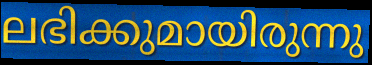
ലഭിക്കുമായിരുന്നു